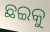
ଛଇକୁ